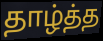
தாழ்த்த